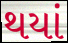
થયાં